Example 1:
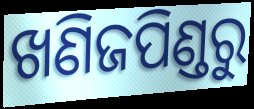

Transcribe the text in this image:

ଖଣିଜପିଣ୍ଡରୁ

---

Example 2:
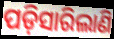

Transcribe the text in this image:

ପଡ଼ିସାରିଲାଣି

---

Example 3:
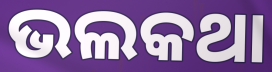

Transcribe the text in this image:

ଭଲକଥା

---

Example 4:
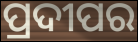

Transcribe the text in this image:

ପ୍ରଦୀପର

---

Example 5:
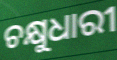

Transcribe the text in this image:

ଚକ୍ଷୁଧାରୀ